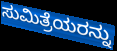
ಸುಮಿತ್ರೆಯರನ್ನು